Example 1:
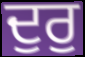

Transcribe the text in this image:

ਦੁਰੁ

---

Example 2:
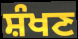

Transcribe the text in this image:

ਸ਼ੰਖਣ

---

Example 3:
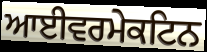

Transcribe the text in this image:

ਆਈਵਰਮੇਕਟਿਨ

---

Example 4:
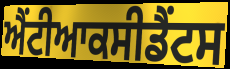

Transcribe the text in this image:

ਐਂਟੀਆਕਸੀਡੈਂਟਸ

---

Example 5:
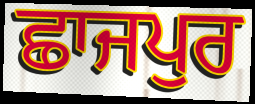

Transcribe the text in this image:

ਛਾਜਪੁਰ